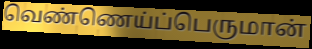
வெண்ணெய்ப்பெருமான்